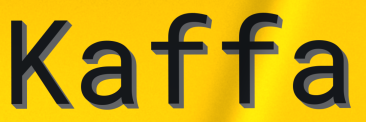
Kaffa